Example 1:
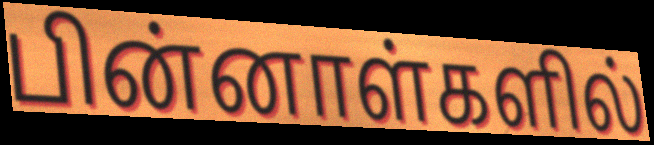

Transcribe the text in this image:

பின்னாள்களில்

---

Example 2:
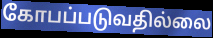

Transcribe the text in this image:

கோபப்படுவதில்லை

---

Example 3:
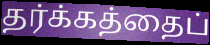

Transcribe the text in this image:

தர்க்கத்தைப்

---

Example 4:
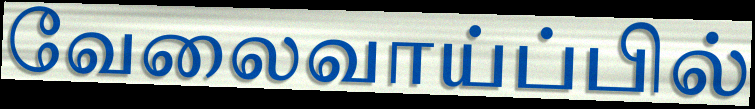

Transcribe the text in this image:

வேலைவாய்ப்பில்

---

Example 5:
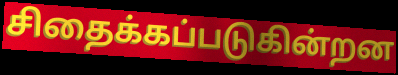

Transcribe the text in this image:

சிதைக்கப்படுகின்றன